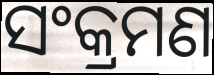
ସଂକ୍ରମଣ